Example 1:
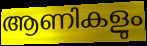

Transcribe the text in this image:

ആണികളും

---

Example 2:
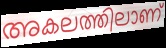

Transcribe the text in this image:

അകലത്തിലാണ്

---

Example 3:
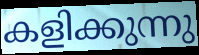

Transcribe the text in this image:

കളിക്കുന്നു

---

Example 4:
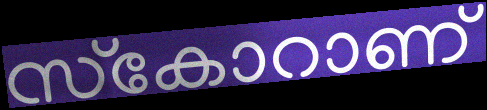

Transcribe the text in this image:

സ്‌കോറാണ്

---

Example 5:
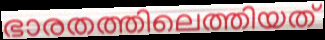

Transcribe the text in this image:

ഭാരതത്തിലെത്തിയത്